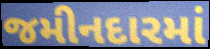
જમીનદારમાં